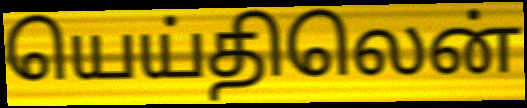
யெய்திலென்